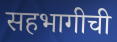
सहभागीची